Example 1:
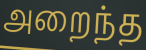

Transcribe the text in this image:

அறைந்த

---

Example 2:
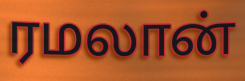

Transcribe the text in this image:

ரமலான்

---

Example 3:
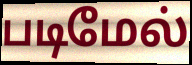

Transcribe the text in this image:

படிமேல்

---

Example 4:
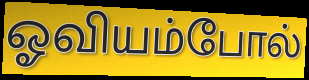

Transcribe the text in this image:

ஓவியம்போல்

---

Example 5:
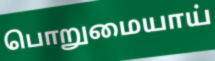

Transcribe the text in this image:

பொறுமையாய்